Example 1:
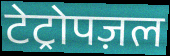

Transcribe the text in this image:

टेट्रोपज़ल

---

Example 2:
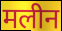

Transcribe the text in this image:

मलीन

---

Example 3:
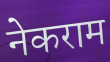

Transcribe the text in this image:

नेकराम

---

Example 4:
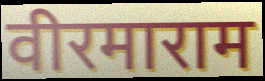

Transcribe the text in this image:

वीरमाराम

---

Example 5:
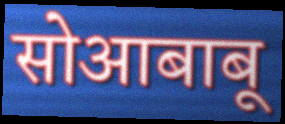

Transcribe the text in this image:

सोआबाबू